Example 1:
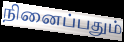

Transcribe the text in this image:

நினைப்பதும்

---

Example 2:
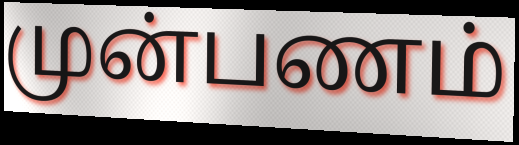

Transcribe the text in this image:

முன்பணம்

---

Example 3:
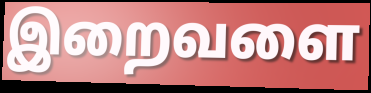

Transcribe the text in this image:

இறைவளை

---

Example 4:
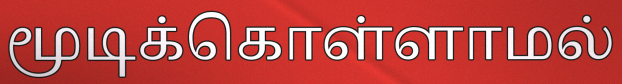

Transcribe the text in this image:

மூடிக்கொள்ளாமல்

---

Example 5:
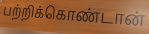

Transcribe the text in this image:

பற்றிக்கொண்டான்